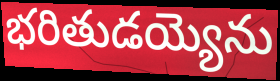
భరితుడయ్యెను